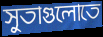
সুতাগুলোতে